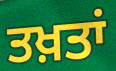
ਤਖ਼ਤਾਂ